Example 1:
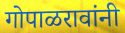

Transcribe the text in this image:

गोपाळरावांनी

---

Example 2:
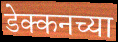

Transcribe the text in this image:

डेक्कनच्या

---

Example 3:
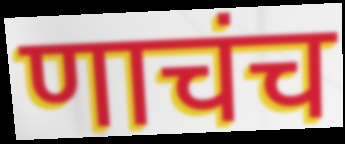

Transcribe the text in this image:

णाचंच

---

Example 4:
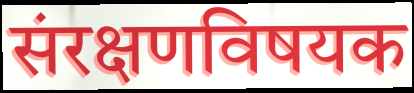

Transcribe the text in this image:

संरक्षणविषयक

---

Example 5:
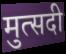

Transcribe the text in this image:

मुत्सदी